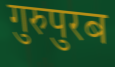
गुरुपुरब